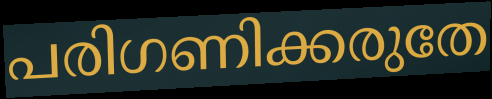
പരിഗണിക്കരുതേ